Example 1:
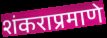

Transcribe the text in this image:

शंकराप्रमाणे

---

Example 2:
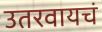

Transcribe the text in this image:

उतरवायचं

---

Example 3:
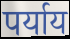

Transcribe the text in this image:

पर्याय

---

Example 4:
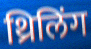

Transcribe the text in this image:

थ्रिलिंग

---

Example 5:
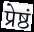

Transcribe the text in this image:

प्रेष्ठं